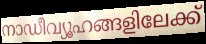
നാഡീവ്യൂഹങ്ങളിലേക്ക്